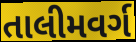
તાલીમવર્ગ